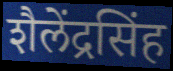
शैलेंद्रसिंह